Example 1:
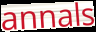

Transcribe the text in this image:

annals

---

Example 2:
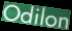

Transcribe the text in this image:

Odilon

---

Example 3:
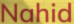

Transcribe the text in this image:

Nahid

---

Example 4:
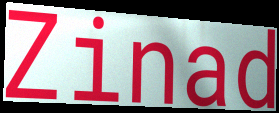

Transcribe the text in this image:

Zinad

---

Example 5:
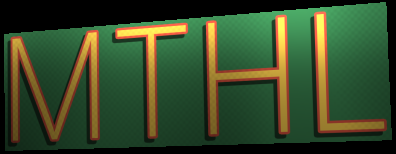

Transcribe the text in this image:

MTHL